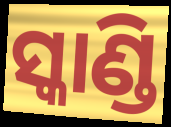
ସ୍କାଣ୍ଡି